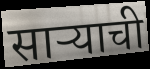
साऱ्याची